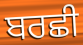
ਬਰਛੀ